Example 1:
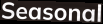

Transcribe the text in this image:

Seasonal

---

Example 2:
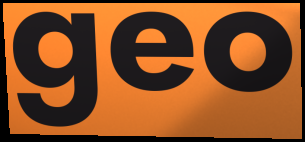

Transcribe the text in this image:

geo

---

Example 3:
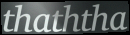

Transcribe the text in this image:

thaththa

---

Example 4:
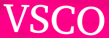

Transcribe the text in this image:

VSCO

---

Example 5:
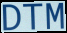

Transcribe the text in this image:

DTM